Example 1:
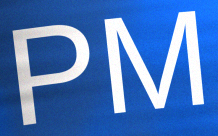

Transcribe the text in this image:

PM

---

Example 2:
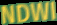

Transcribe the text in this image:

NDWI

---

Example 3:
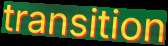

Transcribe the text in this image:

transition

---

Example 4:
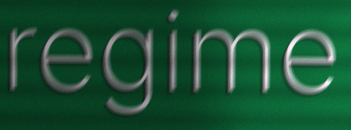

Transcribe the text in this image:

regime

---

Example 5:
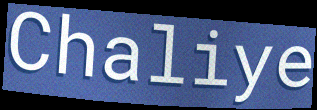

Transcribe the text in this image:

Chaliye